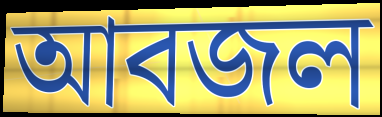
আবজল